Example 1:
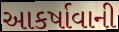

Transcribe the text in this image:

આકર્ષાવાની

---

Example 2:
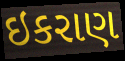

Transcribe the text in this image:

ઇકરાણ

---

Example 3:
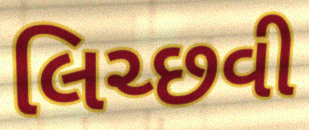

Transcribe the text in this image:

લિચ્છવી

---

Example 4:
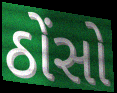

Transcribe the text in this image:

ઠોંસો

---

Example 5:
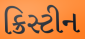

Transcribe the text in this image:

ક્રિસ્ટીન